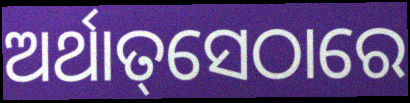
ଅର୍ଥାତ୍‌ସେଠାରେ